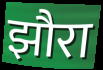
झौरा